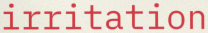
irritation